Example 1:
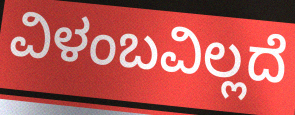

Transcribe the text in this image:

ವಿಳಂಬವಿಲ್ಲದೆ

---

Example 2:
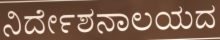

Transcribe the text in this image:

ನಿರ್ದೇಶನಾಲಯದ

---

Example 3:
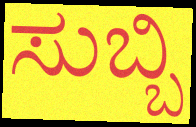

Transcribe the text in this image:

ಸುಬ್ಬಿ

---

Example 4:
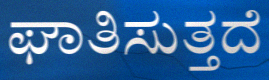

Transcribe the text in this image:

ಘಾತಿಸುತ್ತದೆ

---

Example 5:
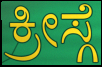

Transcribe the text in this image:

ಕ್ರೀಸ್ಗೆ